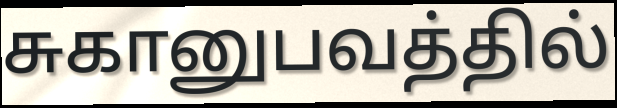
சுகானுபவத்தில்